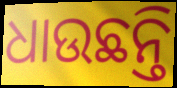
ଧାଉଛନ୍ତି